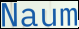
Naum